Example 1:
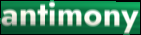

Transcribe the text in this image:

antimony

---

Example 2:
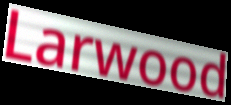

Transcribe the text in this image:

Larwood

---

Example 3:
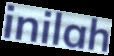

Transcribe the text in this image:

inilah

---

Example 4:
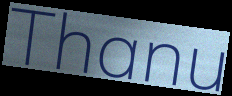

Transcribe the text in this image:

Thanu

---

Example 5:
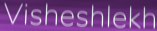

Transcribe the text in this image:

Visheshlekh